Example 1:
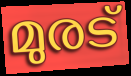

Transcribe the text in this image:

മുരട്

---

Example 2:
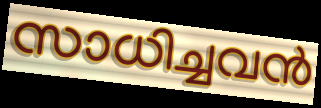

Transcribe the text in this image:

സാധിച്ചവൻ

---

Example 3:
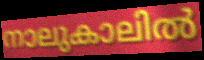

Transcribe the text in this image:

നാലുകാലിൽ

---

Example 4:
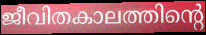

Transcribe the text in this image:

ജീവിതകാലത്തിന്റെ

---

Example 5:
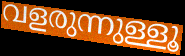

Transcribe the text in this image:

വളരുന്നുള്ളൂ